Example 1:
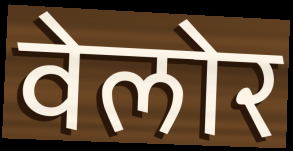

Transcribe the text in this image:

वेलोर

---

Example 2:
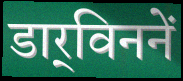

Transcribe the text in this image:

डार्विननें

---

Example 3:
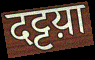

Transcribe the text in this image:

दट्टय़ा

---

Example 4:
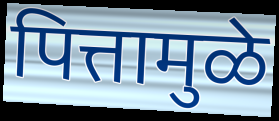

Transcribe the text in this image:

पित्तामुळे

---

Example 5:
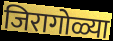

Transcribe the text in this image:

जिरागोळ्या